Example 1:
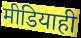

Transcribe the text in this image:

मीडियाही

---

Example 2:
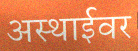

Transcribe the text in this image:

अस्थाईवर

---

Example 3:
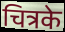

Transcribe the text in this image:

चित्रके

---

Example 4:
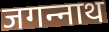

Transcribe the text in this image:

जगन्नाथ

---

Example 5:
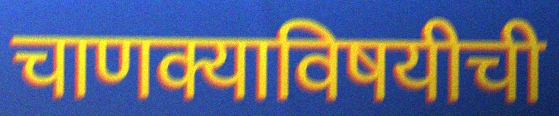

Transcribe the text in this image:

चाणक्याविषयीची